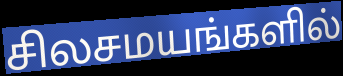
சிலசமயங்களில்